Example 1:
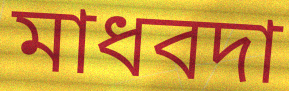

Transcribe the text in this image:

মাধবদা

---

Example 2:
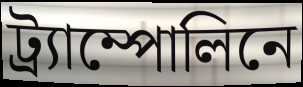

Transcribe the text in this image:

ট্র্যাম্পোলিনে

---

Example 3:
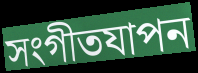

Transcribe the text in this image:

সংগীতযাপন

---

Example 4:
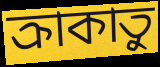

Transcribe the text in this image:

ক্রাকাতু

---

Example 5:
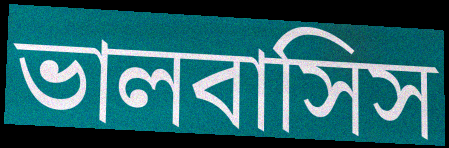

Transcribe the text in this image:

ভালবাসিস